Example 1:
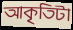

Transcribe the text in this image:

আকৃতিটা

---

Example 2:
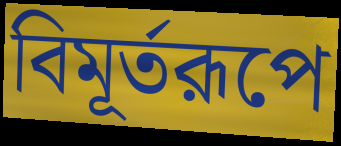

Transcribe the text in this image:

বিমূর্তরূপে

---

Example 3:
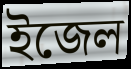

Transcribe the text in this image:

ইজেল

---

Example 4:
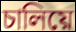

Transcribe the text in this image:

চালিয়ে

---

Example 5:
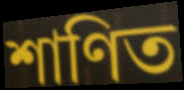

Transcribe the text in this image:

শাণিত